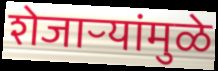
शेजाऱ्यांमुळे